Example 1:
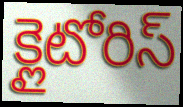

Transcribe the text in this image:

క్లైటోరిస్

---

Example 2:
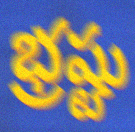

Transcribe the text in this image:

భ్రష్టు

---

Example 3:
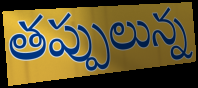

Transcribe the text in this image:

తప్పులున్న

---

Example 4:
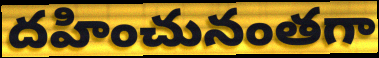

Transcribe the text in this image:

దహించునంతగా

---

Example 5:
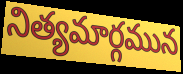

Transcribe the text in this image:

నిత్యమార్గమున